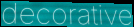
decorative